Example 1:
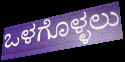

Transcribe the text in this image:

ಒಳಗೊಳ್ಳಲು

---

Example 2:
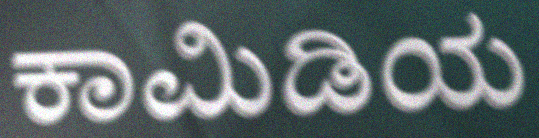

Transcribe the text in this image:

ಕಾಮಿಡಿಯ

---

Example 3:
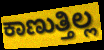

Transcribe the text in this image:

ಕಾಣುತ್ತಿಲ್ಲ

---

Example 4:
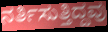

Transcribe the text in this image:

ನರ್ತಿಸುತ್ತಿದ್ದವು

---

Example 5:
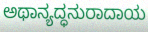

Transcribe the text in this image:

ಅಥಾನ್ಯದ್ಧನುರಾದಾಯ